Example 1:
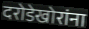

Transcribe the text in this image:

दरोडेखोरांना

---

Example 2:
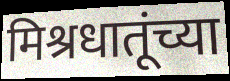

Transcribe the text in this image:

मिश्रधातूंच्या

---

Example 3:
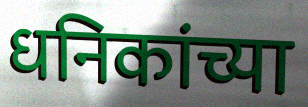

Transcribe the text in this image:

धनिकांच्या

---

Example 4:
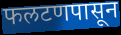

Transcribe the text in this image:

फलटणपासून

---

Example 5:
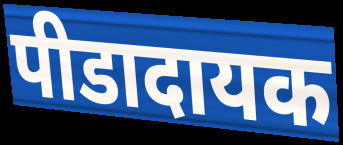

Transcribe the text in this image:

पीडादायक